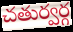
చతుర్వర్గ